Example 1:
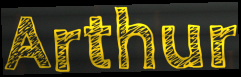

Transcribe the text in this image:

Arthur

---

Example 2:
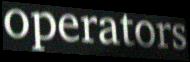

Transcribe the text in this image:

operators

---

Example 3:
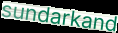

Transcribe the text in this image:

sundarkand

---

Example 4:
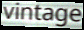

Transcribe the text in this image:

vintage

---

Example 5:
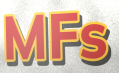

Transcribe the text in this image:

MFs